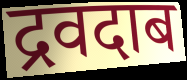
द्रवदाब